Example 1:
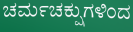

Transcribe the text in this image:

ಚರ್ಮಚಕ್ಷುಗಳಿಂದ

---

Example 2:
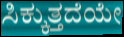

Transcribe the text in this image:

ಸಿಕ್ಕುತ್ತದೆಯೇ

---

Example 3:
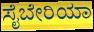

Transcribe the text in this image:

ಸೈಬೇರಿಯಾ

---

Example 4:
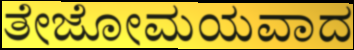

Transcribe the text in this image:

ತೇಜೋಮಯವಾದ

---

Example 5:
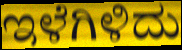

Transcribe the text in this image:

ಇಳೆಗಿಳಿದು